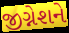
જીગ્નેશને